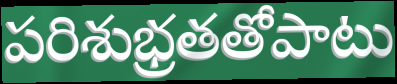
పరిశుభ్రతతోపాటు